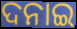
ଦନାଇ